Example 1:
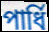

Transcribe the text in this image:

পাৰ্ধি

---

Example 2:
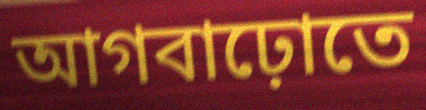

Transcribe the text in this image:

আগবাঢ়োতে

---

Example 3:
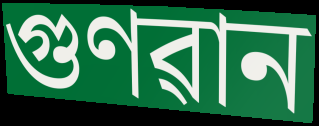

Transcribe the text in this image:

গুণৱান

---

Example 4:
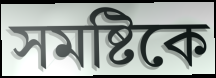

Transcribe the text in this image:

সমষ্টিকে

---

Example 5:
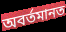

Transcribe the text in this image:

অবৰ্তমানত